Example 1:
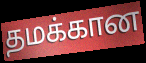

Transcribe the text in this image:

தமக்கான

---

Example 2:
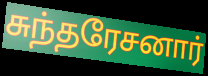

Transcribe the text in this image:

சுந்தரேசனார்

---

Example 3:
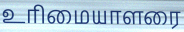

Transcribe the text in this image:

உரிமையாளரை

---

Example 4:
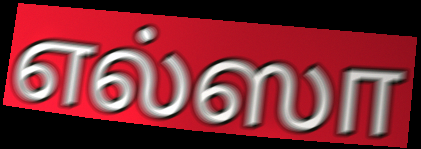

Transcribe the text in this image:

எல்ஸா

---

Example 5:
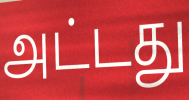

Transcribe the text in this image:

அட்டது